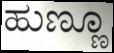
ಹುಣ್ಣೂ